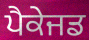
ਪੈਕੇਜਡ